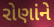
રોણાંને